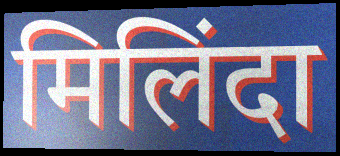
मिलिंदा